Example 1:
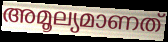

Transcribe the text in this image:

അമൂല്യമാണത്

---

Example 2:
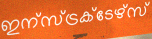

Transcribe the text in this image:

ഇന്സ്ട്രക്ടേഴ്സ്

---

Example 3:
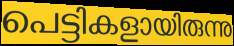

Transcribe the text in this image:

പെട്ടികളായിരുന്നു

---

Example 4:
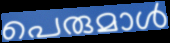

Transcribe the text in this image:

പെരുമാൾ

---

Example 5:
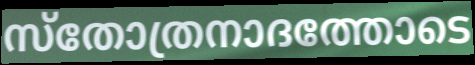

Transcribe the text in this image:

സ്തോത്രനാദത്തോടെ